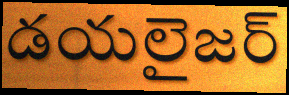
డయలైజర్